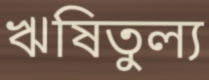
ঋষিতুল্য